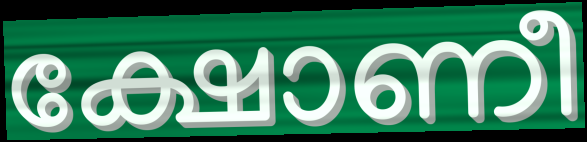
ക്ഷോണീ